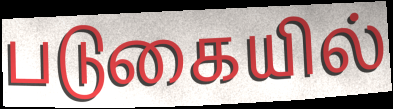
படுகையில்